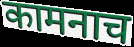
कामनाच